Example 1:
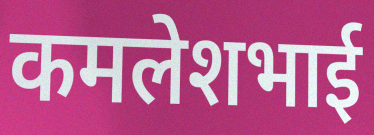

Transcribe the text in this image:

कमलेशभाई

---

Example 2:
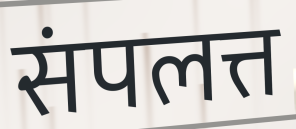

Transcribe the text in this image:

संपलत्त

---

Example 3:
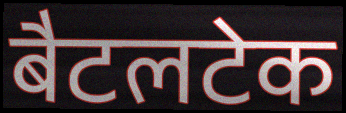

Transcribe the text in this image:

बैटलटेक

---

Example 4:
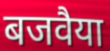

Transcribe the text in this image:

बजवैया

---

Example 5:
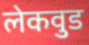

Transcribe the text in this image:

लेकवुड